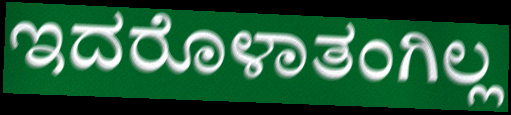
ಇದರೊಳಾತಂಗಿಲ್ಲ